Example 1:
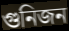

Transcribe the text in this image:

গুনিজন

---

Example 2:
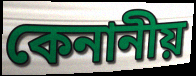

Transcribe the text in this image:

কেনানীয়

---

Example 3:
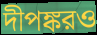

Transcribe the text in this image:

দীপঙ্করও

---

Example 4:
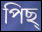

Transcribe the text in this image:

পিছ্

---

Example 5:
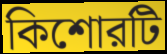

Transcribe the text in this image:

কিশোরটি